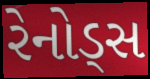
રેનોડ્સ